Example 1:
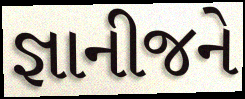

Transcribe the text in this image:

જ્ઞાનીજને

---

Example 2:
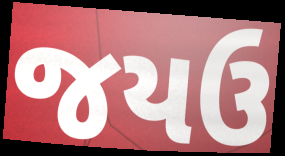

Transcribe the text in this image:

જયઉ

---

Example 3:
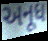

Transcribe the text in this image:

અનૂધ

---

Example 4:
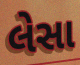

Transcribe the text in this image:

લેસા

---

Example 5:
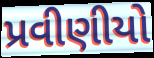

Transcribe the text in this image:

પ્રવીણીયો